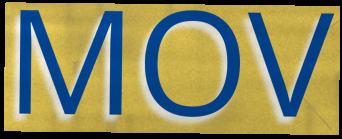
MOV